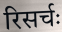
रिसर्चः